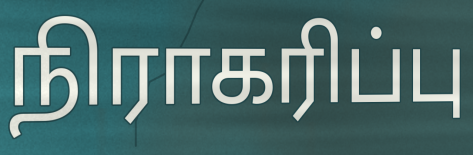
நிராகரிப்பு